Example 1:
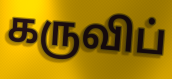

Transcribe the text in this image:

கருவிப்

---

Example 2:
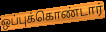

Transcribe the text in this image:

ஒப்புக்கொண்டார்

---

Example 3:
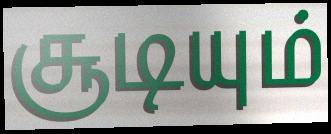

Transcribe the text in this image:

சூடியும்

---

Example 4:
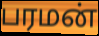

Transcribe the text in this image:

பரமன்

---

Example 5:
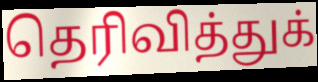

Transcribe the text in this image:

தெரிவித்துக்